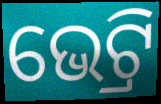
ଭେଟ୍ରି